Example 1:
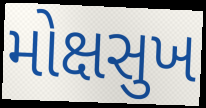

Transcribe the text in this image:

મોક્ષસુખ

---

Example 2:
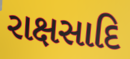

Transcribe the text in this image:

રાક્ષસાદિ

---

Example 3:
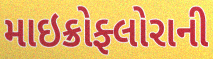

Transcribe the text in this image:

માઇક્રોફ્લોરાની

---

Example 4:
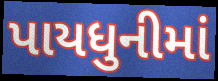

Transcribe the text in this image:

પાયધુનીમાં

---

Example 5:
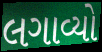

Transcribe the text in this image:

લગાવ્યો